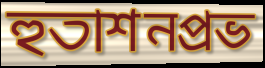
হুতাশনপ্রভ